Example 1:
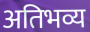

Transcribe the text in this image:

अतिभव्य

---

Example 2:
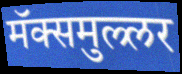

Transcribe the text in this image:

मॅक्समुल्लर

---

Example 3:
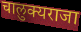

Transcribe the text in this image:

चालुक्यराजा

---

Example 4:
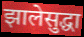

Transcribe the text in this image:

झालेसुद्धा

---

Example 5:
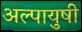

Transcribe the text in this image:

अल्पायुषी